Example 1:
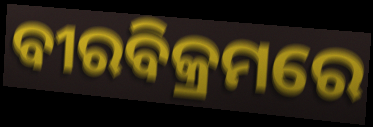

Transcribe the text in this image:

ବୀରବିକ୍ରମରେ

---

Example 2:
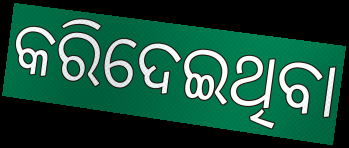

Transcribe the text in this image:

କରିଦେଇଥିବା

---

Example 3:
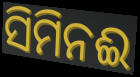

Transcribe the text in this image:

ସିମିନଈ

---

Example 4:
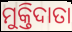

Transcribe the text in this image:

ମୁକ୍ତିଦାତା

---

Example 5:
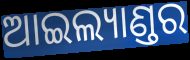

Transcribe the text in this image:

ଆଇଲ୍ୟାଣ୍ଡର